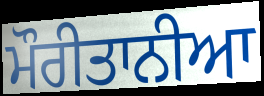
ਮੌਰੀਤਾਨੀਆ